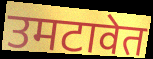
उमटावेत